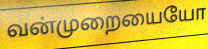
வன்முறையையோ